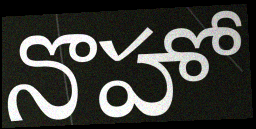
నొహో